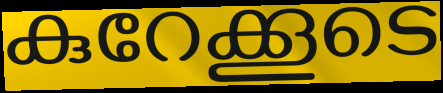
കുറേക്കൂടെ